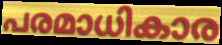
പരമാധികാര